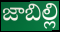
జాబిల్లి